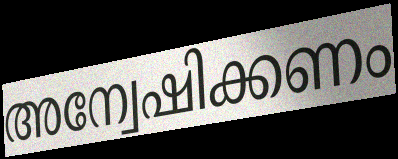
അന്വേഷിക്കണം